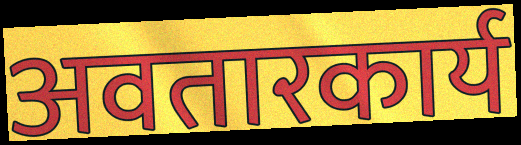
अवतारकार्य